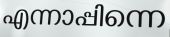
എന്നാപ്പിന്നെ